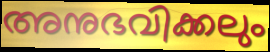
അനുഭവിക്കലും